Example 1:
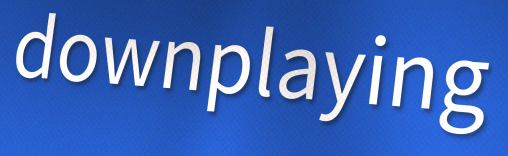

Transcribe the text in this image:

downplaying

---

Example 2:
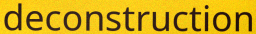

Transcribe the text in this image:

deconstruction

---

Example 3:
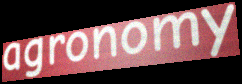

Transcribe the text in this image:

agronomy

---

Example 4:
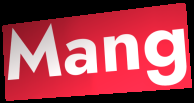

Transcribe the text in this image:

Mang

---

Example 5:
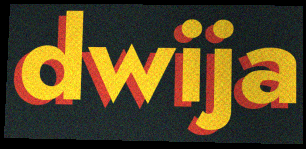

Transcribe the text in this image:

dwija